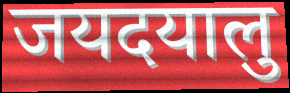
जयदयालु